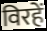
विरहें